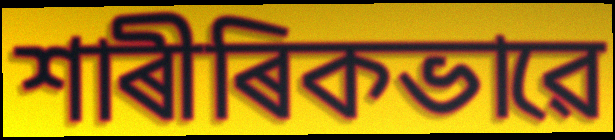
শাৰীৰিকভাৱে